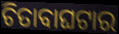
ଚିତାବାଘଟାର